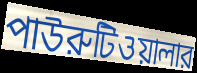
পাউরুটিওয়ালার